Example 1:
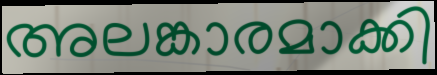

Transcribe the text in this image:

അലങ്കാരമാക്കി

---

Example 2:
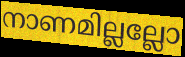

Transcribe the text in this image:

നാണമില്ലല്ലോ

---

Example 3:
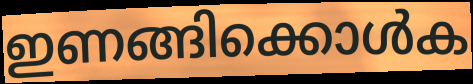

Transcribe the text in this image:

ഇണങ്ങിക്കൊൾക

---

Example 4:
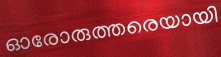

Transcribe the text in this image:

ഓരോരുത്തരെയായി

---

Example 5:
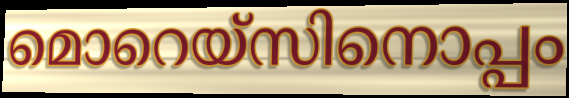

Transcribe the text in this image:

മൊറെയ്സിനൊപ്പം